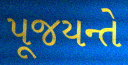
પૂજયન્તે